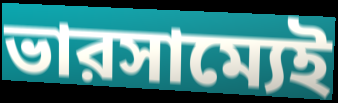
ভারসাম্যেই